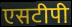
एसटीपी